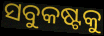
ସବୁକଷ୍ଟକୁ